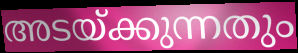
അടയ്ക്കുന്നതും